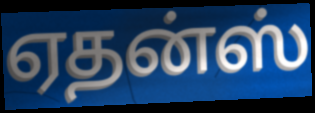
ஏதன்ஸ்